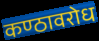
कण्ठावरोध